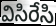
విసిరేసి